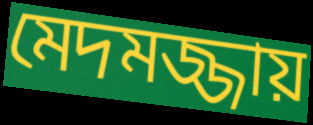
মেদমজ্জায়